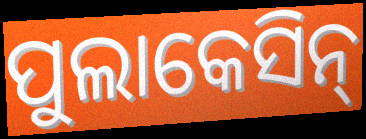
ପୁଲାକେସିନ୍